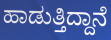
ಹಾಡುತ್ತಿದ್ದಾನೆ